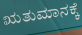
ಋತುಮಾನಕ್ಕೆ